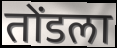
तोंडला